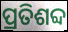
ପ୍ରତିଶବ୍ଦ